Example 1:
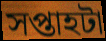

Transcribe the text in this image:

সপ্তাহটা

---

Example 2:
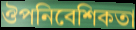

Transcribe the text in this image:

ঔপনিবেশিকতা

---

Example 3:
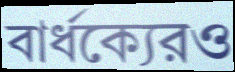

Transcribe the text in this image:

বার্ধক্যেরও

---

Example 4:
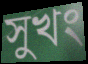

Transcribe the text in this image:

সুখং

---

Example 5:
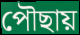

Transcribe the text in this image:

পৌছায়